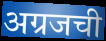
अग्रजची